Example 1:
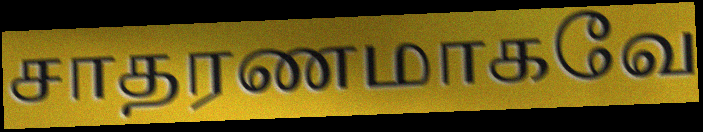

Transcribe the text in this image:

சாதரணமாகவே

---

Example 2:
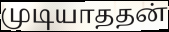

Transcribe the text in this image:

முடியாததன்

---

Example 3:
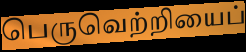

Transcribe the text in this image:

பெருவெற்றியைப்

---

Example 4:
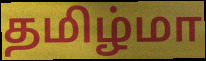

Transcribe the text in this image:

தமிழ்மா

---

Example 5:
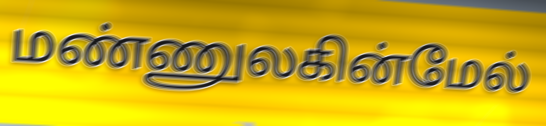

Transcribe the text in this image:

மண்ணுலகின்மேல்